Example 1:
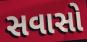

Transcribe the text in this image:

સવાસો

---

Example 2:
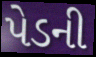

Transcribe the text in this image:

પેડની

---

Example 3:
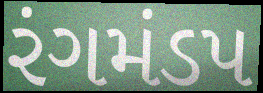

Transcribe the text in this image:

રંગમંડપ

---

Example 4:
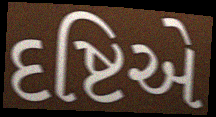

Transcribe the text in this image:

દષ્ટિએ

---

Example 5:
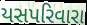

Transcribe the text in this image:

યસપરિવારા